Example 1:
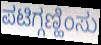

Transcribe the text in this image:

ಪಟಿಗ್ಗಣ್ಹಿಂಸು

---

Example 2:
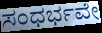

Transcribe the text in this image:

ಸಂಧರ್ಭವೇ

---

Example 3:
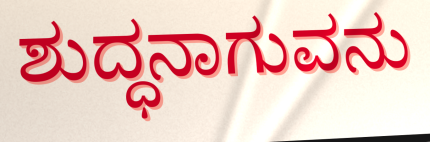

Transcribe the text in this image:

ಶುದ್ಧನಾಗುವನು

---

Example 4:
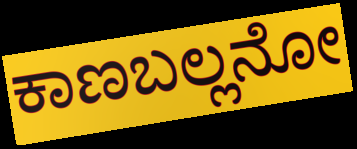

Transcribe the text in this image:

ಕಾಣಬಲ್ಲನೋ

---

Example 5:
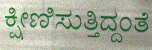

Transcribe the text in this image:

ಕ್ಷೀಣಿಸುತ್ತಿದ್ದಂತೆ